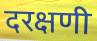
दरक्षणी